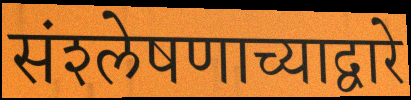
संश्लेषणाच्याद्वारे